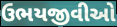
ઉભયજીવીઓ